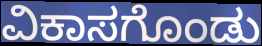
ವಿಕಾಸಗೊಂಡು